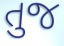
તુજ